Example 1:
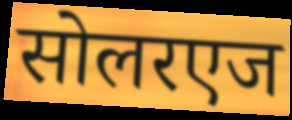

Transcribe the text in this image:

सोलरएज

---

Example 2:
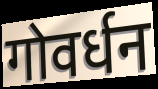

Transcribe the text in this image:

गोवर्धन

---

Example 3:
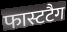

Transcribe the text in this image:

फास्टटैग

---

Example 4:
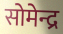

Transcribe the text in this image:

सोमेन्द्र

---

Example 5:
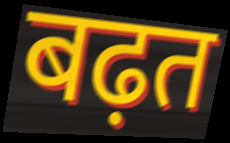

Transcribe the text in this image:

बढ़त